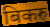
बिकरु